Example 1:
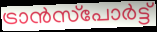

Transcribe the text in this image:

ട്രാൻസ്‌പോർട്ട്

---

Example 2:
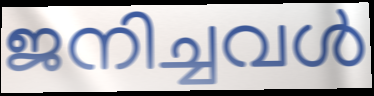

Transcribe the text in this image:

ജനിച്ചവൾ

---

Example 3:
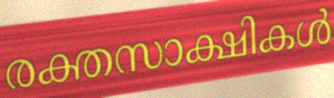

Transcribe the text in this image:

രക്തസാക്ഷികൾ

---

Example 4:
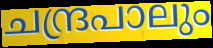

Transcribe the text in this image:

ചന്ദ്രപാലും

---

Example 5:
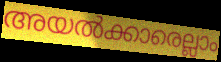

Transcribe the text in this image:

അയൽക്കാരെല്ലാം